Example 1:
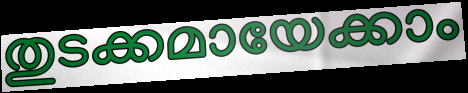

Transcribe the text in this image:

തുടക്കമായേക്കാം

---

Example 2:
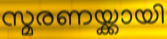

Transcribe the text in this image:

സ്മരണയ്ക്കായി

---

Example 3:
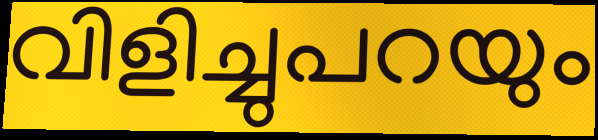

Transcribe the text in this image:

വിളിച്ചുപറയും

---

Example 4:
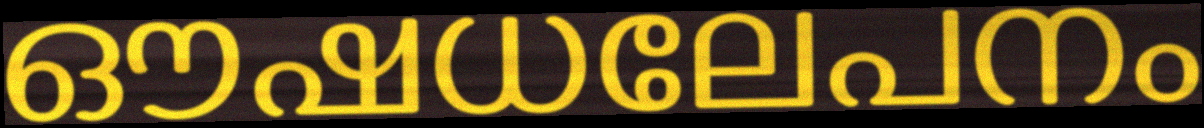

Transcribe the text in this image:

ഔഷധലേപനം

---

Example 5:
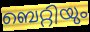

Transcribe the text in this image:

ബെറ്റിയും